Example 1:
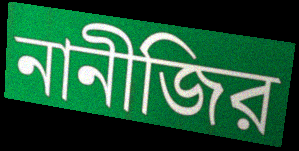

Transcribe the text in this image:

নানীজির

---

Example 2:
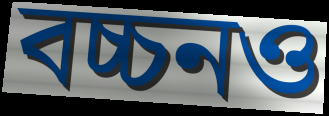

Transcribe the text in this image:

বচ্চনও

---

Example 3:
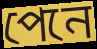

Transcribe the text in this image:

পেনে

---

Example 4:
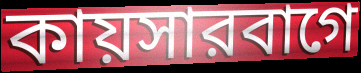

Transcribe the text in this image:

কায়সারবাগে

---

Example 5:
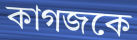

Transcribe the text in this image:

কাগজকে